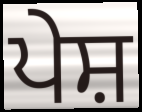
ਪੇਸ਼